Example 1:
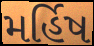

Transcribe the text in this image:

મર્હિષ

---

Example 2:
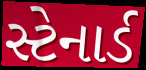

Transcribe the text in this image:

સ્ટેનાર્ડ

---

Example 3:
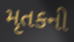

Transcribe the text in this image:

મૃતકની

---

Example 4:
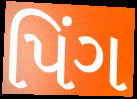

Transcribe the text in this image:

પિંગ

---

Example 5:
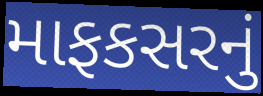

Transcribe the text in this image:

માફકસરનું